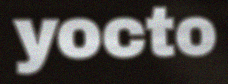
yocto